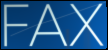
FAX